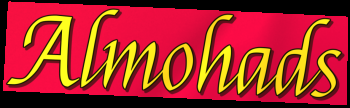
Almohads